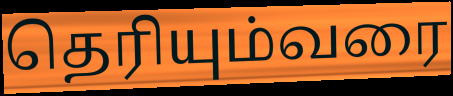
தெரியும்வரை